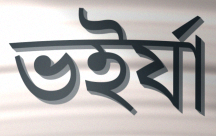
ভইর্যা